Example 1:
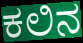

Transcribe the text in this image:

ಕಲಿನ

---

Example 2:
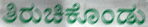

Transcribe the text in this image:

ತಿರುಚಿಕೊಂಡು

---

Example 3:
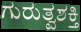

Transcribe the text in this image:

ಗುರುತ್ವಶಕ್ತಿ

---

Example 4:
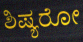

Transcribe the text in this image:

ಶಿಷ್ಯರೋ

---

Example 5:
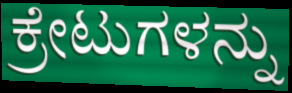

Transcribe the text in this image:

ಕ್ರೇಟುಗಳನ್ನು